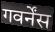
गवर्नेंस